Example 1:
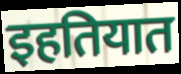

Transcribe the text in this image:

इहतियात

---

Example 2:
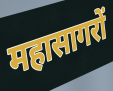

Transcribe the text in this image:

महासागरों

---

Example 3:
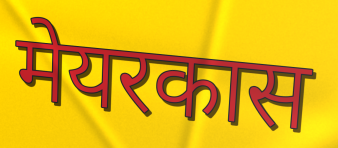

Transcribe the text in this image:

मेयरकास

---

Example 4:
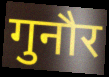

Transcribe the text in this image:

गुनौर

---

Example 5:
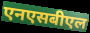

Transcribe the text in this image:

एनएसबीएल